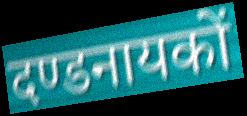
दण्डनायकों